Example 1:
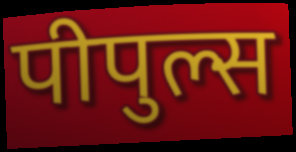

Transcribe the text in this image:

पीपुल्स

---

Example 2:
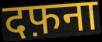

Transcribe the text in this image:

दफ़ना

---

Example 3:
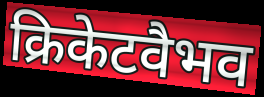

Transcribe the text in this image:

क्रिकेटवैभव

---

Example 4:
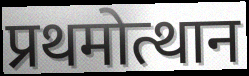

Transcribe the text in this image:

प्रथमोत्थान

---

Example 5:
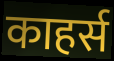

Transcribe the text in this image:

काहर्स